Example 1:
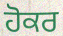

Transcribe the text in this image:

ਹੋਕਰ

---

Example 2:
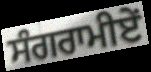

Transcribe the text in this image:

ਸੰਗਰਾਮੀਏਂ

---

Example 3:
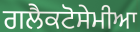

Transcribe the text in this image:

ਗਲੈਕਟੋਸੇਮੀਆ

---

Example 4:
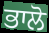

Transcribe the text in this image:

ਭਾਲੋ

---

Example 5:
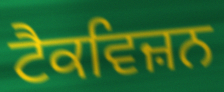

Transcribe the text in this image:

ਟੈਕਵਿਜ਼ਨ